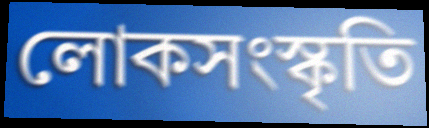
লোকসংস্কৃতি